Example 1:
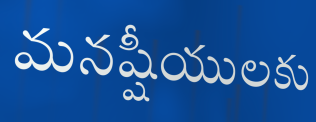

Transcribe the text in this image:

మనష్షీయులకు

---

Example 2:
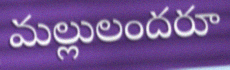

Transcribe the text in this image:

మల్లులందరూ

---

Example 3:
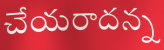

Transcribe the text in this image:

చేయరాదన్న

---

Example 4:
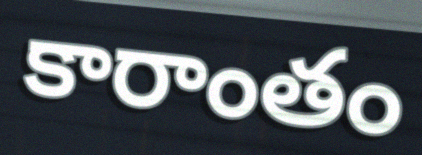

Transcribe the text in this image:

కారాంతం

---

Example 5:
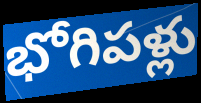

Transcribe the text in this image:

భోగిపళ్లు